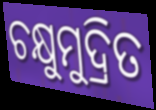
ଚକ୍ଷୁମୁଦ୍ରିତ